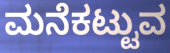
ಮನೆಕಟ್ಟುವ